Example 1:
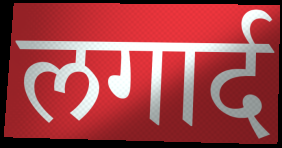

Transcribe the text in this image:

लगार्द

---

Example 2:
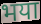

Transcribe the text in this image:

भया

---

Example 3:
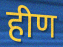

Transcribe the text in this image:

हीण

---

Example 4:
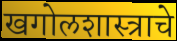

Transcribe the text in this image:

खगोलशास्त्राचे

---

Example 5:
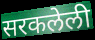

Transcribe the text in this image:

सरकलेली